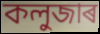
কলুজাৰ